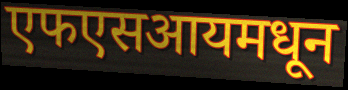
एफएसआयमधून